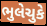
ભુલેચુકે